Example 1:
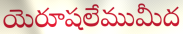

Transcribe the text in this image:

యెరూషలేముమీద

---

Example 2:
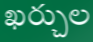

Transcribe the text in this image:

ఖర్చుల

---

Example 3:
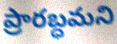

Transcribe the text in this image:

ప్రారబ్ధమని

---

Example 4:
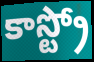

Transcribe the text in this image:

కాస్ట్రో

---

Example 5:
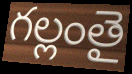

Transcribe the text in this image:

గల్లంతై